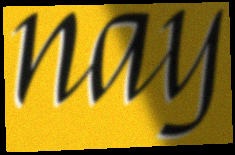
nay